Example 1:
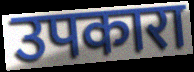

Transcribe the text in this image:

उपकारा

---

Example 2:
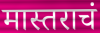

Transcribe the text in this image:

मास्तराचं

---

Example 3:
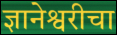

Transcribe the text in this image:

ज्ञानेश्वरीचा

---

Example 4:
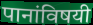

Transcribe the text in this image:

पानांविषयी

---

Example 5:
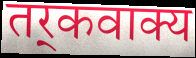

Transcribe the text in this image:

तर्कवाक्य